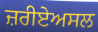
ਜ਼ਰੀਏਅਸਲ